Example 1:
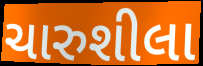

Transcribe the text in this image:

ચારુશીલા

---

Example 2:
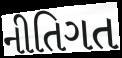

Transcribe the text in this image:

નીતિગત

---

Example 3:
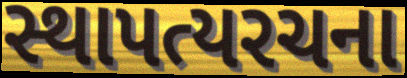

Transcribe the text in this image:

સ્થાપત્યરચના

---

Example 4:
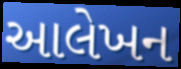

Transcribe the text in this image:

આલેખન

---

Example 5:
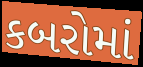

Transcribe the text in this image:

કબરોમાં